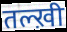
तल्ख़ी